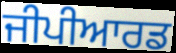
ਜੀਪੀਆਰਡ